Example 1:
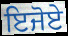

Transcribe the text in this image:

ਇਜੋਏ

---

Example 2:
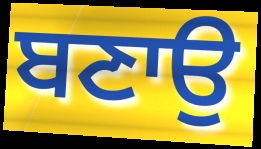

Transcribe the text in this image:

ਬਣਾਉ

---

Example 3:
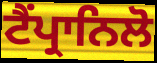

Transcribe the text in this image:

ਟੈਂਪ੍ਰਾਨਿਲੋ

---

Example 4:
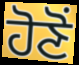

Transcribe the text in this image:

ਹੋਣੋਂ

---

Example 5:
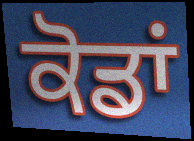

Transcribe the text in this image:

ਕੋਡਾਂ